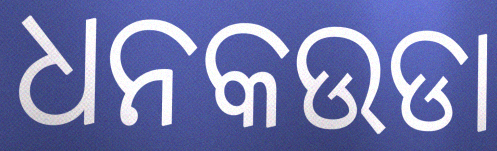
ଧନକଉଡା